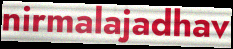
nirmalajadhav